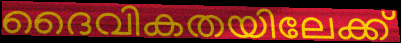
ദൈവികതയിലേക്ക്